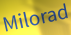
Milorad